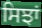
ਸਿਝਾਂ